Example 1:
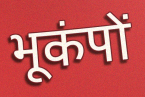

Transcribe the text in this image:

भूकंपों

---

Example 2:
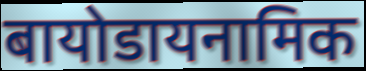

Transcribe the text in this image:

बायोडायनामिक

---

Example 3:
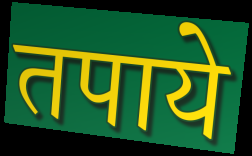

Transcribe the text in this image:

तपाये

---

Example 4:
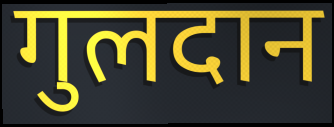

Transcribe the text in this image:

गुलदान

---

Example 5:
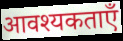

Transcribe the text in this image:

आवश्यकताएँ